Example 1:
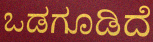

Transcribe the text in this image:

ಒಡಗೂಡಿದೆ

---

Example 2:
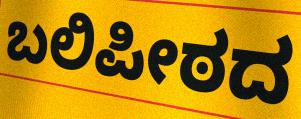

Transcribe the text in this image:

ಬಲಿಪೀಠದ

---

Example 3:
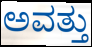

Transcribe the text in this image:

ಅವತ್ತು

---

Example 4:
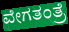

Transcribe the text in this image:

ವೇಗತಂತ್ರೆ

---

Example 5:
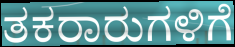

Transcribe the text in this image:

ತಕರಾರುಗಳಿಗೆ